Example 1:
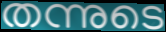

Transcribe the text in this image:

തന്നുടെ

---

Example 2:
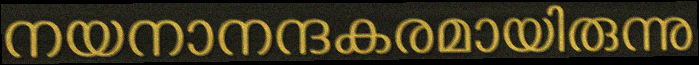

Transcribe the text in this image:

നയനാനന്ദകരമായിരുന്നു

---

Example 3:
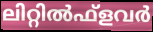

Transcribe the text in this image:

ലിറ്റിൽഫ്ളവർ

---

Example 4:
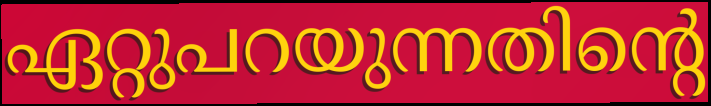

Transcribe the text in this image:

ഏറ്റുപറയുന്നതിന്റെ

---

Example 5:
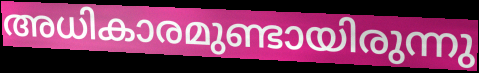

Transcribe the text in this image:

അധികാരമുണ്ടായിരുന്നു